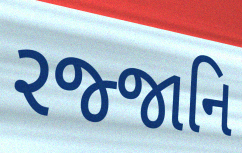
રજ્જાનિ